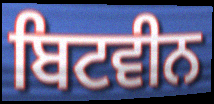
ਬਿਟਵੀਨ